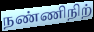
நண்ணிநிற்